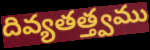
దివ్యతత్త్వము